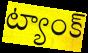
ట్యాంక్